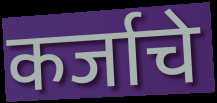
कर्जाचे